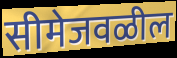
सीमेजवळील